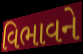
વિભાવને